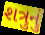
શત્રુનું